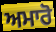
ਅਮਾਰੋ